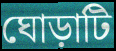
ঘোড়াটি